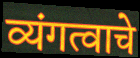
व्यंगत्वाचे